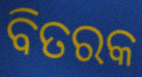
ବିତରକ